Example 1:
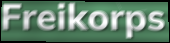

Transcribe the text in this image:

Freikorps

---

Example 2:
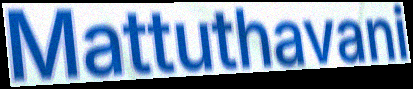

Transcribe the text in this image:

Mattuthavani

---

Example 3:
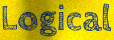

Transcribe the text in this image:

Logical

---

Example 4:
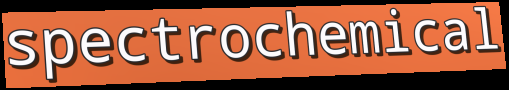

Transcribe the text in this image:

spectrochemical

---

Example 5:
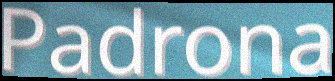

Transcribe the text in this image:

Padrona